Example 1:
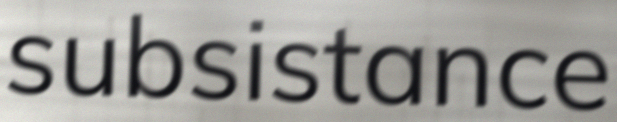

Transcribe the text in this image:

subsistance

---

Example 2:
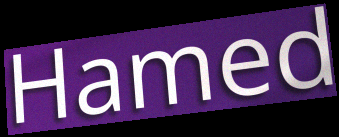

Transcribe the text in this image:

Hamed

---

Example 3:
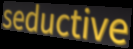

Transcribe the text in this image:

seductive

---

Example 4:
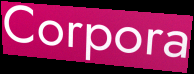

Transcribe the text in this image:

Corpora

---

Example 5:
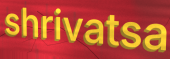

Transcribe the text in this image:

shrivatsa